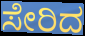
ಸೇರಿದ